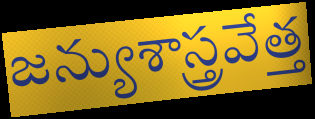
జన్యుశాస్త్రవేత్త